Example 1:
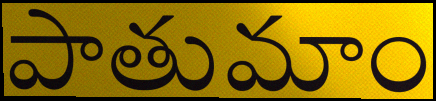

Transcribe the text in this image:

పాతుమాం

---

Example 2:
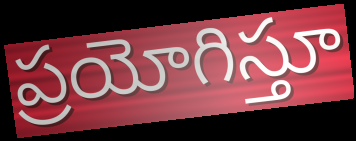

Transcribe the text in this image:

ప్రయోగిస్తూ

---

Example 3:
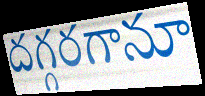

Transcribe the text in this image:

దగ్గరగానూ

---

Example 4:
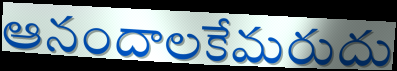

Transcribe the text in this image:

ఆనందాలకేమరుదు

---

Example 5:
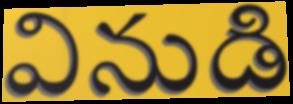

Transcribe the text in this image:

వినుడి